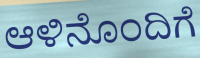
ಆಳಿನೊಂದಿಗೆ